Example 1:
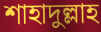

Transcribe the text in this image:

শাহাদুল্লাহ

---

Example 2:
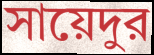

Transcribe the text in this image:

সায়েদুর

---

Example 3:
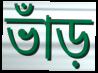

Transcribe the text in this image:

ভাঁড়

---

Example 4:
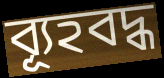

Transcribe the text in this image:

ব্যূহবদ্ধ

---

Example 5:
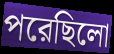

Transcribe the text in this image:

পরেছিলো